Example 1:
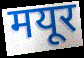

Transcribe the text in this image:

मयूर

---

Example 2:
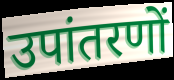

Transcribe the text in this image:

उपांतरणों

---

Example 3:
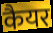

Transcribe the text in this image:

कैयर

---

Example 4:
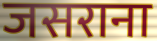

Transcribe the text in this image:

जसराना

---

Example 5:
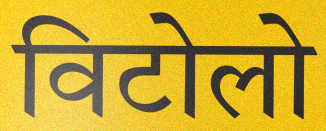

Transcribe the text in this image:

विटोलो